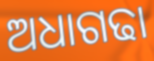
ଅଧାଗଢା